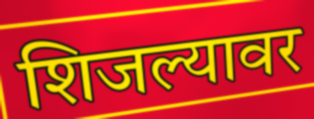
शिजल्यावर